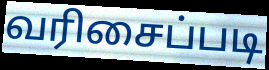
வரிசைப்படி